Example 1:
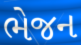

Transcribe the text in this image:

ભેજન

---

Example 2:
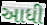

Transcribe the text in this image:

આધી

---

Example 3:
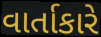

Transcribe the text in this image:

વાર્તાકારે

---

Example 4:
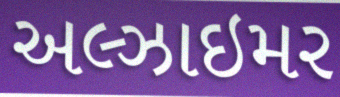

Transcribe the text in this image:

અલ્ઝાઇમર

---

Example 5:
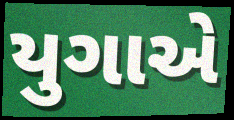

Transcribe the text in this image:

યુગાએ